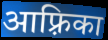
आफ़्रिका